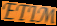
ETIM